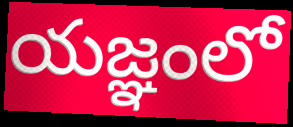
యజ్ఞంలో